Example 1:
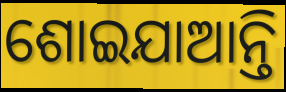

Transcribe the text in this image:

ଶୋଇଯାଆନ୍ତି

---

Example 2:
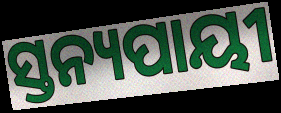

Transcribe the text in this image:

ସ୍ତନ୍ୟପାୟୀ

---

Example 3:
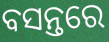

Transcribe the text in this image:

ବସନ୍ତରେ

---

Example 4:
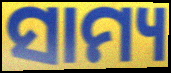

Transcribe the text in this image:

ସାମ୍ୟ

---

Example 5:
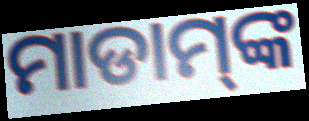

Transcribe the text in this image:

ମାଡାମ୍‌ଙ୍କ